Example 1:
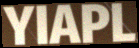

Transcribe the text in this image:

YIAPL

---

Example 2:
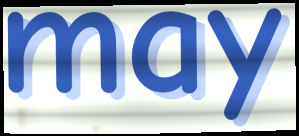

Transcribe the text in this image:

may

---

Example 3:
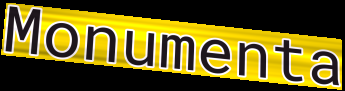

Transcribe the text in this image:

Monumenta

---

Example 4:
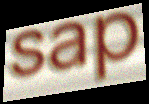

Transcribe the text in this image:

sap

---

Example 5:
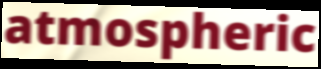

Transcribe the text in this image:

atmospheric